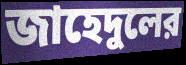
জাহেদুলের